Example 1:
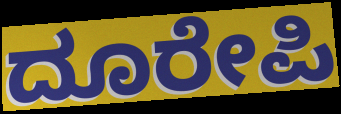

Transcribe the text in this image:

ದೂರೇಪಿ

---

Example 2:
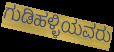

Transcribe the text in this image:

ಗುಡಿಹಳ್ಳಿಯವರು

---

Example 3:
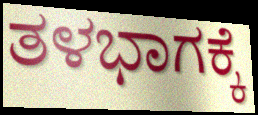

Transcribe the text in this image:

ತಳಭಾಗಕ್ಕೆ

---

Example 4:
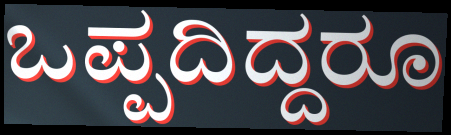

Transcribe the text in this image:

ಒಪ್ಪದಿದ್ದರೂ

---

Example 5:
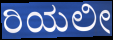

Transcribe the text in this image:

ರಿಯಲೀ